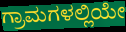
ಗ್ರಾಮಗಳಲ್ಲಿಯೇ